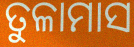
ତୁଳାମାସ